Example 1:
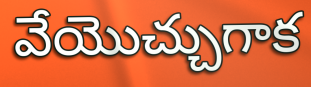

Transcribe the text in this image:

వేయొచ్చుగాక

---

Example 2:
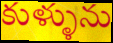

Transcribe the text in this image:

కుళ్ళును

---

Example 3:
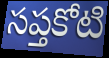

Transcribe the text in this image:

సప్తకోటి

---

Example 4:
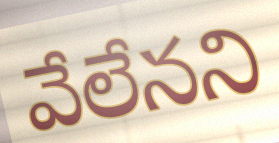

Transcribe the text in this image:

వేలేనని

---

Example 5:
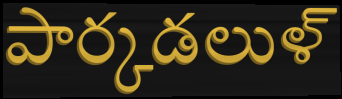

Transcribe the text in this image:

పార్కడలుళ్